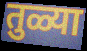
तुळ्या